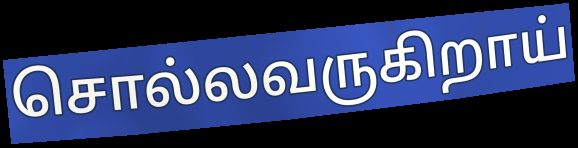
சொல்லவருகிறாய்